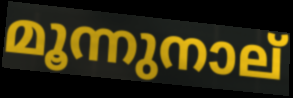
മൂന്നുനാല്